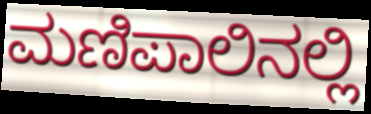
ಮಣಿಪಾಲಿನಲ್ಲಿ